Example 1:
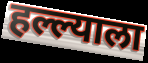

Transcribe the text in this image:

हल्ल्याला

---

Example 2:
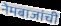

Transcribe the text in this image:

नेमबाजांची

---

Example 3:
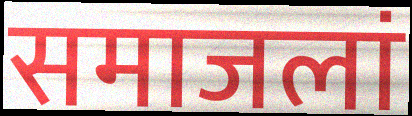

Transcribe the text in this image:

समाजलां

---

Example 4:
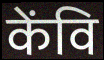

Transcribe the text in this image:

केंवि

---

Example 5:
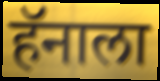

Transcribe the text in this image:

हॅनाला